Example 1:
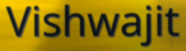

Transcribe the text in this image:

Vishwajit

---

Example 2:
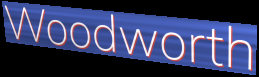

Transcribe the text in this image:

Woodworth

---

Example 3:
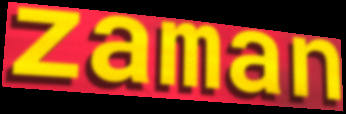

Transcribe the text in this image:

zaman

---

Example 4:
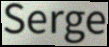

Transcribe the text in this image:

Serge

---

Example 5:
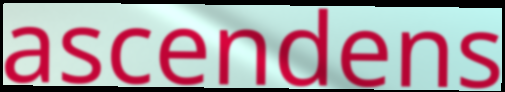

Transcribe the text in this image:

ascendens